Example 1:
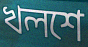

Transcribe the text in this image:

খলশে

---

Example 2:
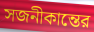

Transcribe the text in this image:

সজনীকান্তের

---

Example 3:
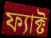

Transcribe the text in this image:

ফ্যাক্ট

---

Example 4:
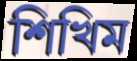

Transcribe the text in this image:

শিখিম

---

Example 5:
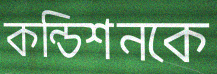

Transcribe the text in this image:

কন্ডিশনকে